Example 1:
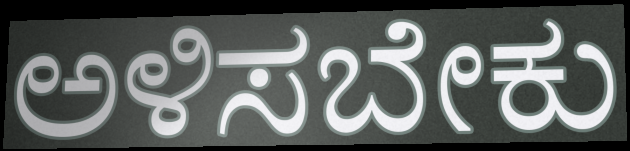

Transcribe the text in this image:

ಅಳಿಸಬೇಕು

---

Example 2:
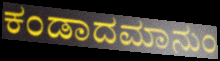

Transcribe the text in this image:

ಕಂಡಾದಮಾನುಂ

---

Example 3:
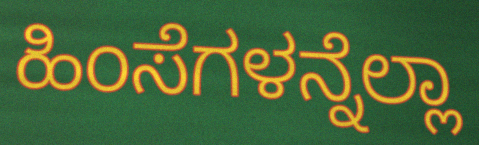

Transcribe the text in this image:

ಹಿಂಸೆಗಳನ್ನೆಲ್ಲಾ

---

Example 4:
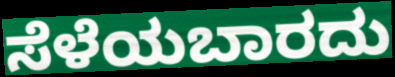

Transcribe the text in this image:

ಸೆಳೆಯಬಾರದು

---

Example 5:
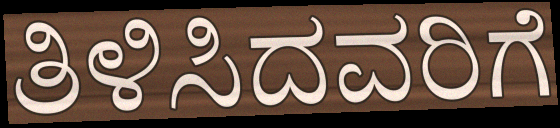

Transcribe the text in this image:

ತಿಳಿಸಿದವರಿಗೆ